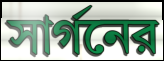
সার্গনের